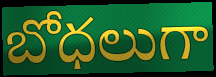
బోధలుగా